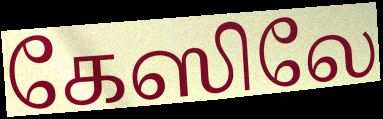
கேஸிலே